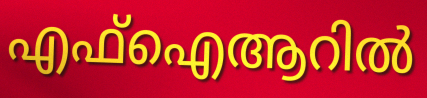
എഫ്ഐആറിൽ